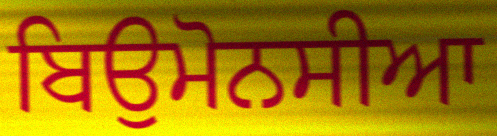
ਬਿਉਮੋਨਸੀਆ